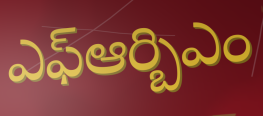
ఎఫ్ఆర్బిఎం